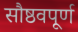
सौष्ठवपूर्ण